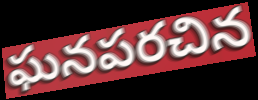
ఘనపరచిన